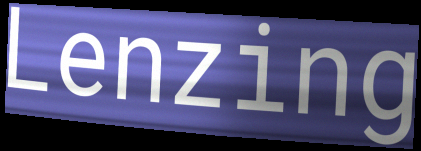
Lenzing